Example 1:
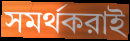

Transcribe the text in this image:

সমর্থকরাই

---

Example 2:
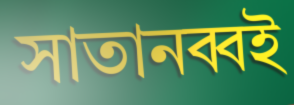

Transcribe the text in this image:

সাতানব্বই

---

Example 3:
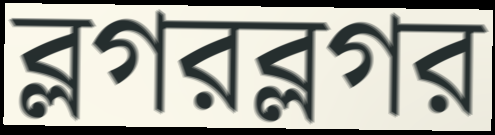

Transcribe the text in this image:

ব্লগরব্লগর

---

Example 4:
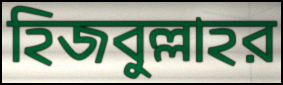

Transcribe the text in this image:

হিজবুল্লাহর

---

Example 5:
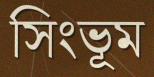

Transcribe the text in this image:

সিংভূম